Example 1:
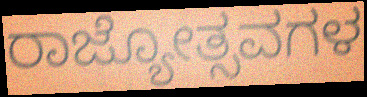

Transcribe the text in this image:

ರಾಜ್ಯೋತ್ಸವಗಳ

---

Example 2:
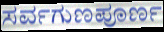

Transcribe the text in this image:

ಸರ್ವಗುಣಪೂರ್ಣ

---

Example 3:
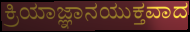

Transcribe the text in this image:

ಕ್ರಿಯಾಜ್ಞಾನಯುಕ್ತವಾದ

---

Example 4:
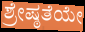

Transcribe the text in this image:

ಶ್ರೇಷ್ಠತೆಯೇ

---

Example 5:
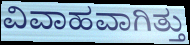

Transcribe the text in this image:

ವಿವಾಹವಾಗಿತ್ತು